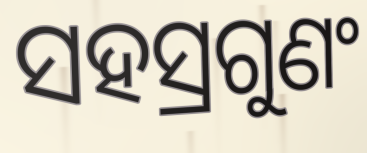
ସହସ୍ରଗୁଣଂ